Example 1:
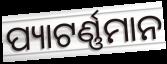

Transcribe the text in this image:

ପ୍ୟାଟର୍ଣ୍ଣମାନ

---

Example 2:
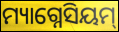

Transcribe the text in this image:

ମ୍ୟାଗ୍ନେସିୟମ୍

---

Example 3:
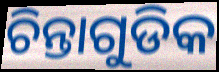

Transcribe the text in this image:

ଚିନ୍ତାଗୁଡିକ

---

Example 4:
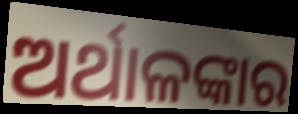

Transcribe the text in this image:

ଅର୍ଥାଳଙ୍କାର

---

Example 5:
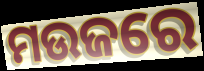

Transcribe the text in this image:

ମଉଜରେ